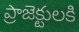
ప్రాజెక్టులకి